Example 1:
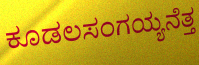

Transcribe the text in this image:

ಕೂಡಲಸಂಗಯ್ಯನೆತ್ತ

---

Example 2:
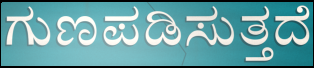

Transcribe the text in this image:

ಗುಣಪಡಿಸುತ್ತದೆ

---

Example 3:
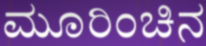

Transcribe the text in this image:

ಮೂರಿಂಚಿನ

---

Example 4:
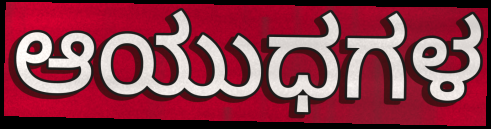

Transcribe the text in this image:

ಆಯುಧಗಳ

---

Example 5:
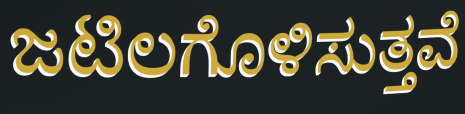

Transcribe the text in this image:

ಜಟಿಲಗೊಳಿಸುತ್ತವೆ